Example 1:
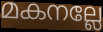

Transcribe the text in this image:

മകനല്ലേ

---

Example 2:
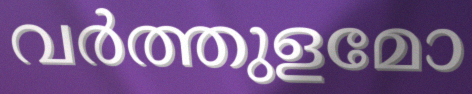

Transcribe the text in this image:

വർത്തുളമോ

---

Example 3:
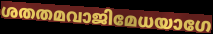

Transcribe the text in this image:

ശതതമവാജിമേധയാഗേ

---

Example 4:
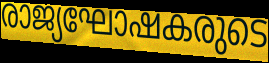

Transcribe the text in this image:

രാജ്യഘോഷകരുടെ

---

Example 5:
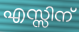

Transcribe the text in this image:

എസ്സിന്